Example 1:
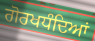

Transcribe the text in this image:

ਗੋਰਖਧੰਦਿਆਂ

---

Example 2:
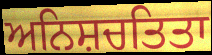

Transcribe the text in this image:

ਅਨਿਸ਼ਚਤਿਤਾ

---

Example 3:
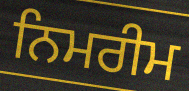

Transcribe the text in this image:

ਨਿਮਰੀਮ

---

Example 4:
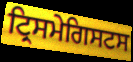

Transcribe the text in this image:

ਟ੍ਰਿਸਮੇਗਿਸਟਸ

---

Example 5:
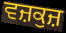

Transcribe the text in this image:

ਵਜ਼ਕੁਜ਼